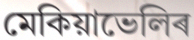
মেকিয়াভেলিৰ